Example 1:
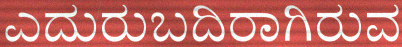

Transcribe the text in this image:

ಎದುರುಬದಿರಾಗಿರುವ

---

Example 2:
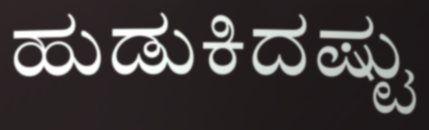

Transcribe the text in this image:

ಹುಡುಕಿದಷ್ಟು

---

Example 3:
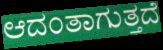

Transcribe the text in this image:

ಆದಂತಾಗುತ್ತದೆ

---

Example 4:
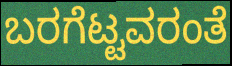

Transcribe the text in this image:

ಬರಗೆಟ್ಟವರಂತೆ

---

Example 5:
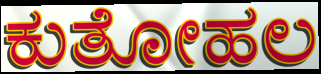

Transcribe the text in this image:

ಕುತೋಹಲ